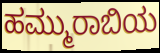
ಹಮ್ಮುರಾಬಿಯ